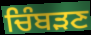
ਚਿੰਬੜਣ